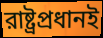
রাষ্ট্রপ্রধানই